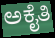
ಅಕೈತಿ